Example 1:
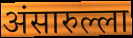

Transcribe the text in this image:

अंसारुल्ला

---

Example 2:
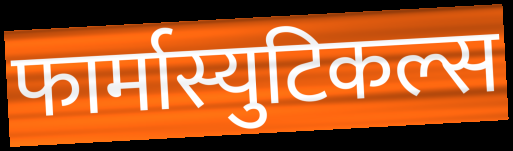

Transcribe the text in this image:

फार्मास्युटिकल्स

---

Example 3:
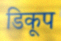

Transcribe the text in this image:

डिकूप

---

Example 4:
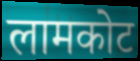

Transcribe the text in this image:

लामकोट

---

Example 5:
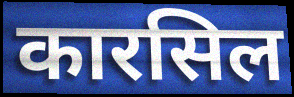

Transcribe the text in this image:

कारसिल